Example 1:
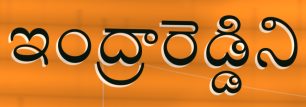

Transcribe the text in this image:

ఇంద్రారెడ్డిని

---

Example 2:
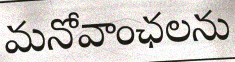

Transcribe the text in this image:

మనోవాంఛలను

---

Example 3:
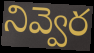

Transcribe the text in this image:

నివ్వెర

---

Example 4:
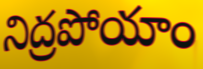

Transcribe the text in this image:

నిద్రపోయాం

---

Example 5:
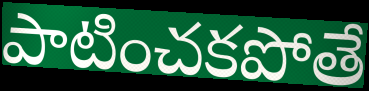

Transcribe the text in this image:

పాటించకపోతే